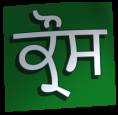
ਕ੍ਰੌਸ